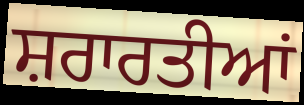
ਸ਼ਰਾਰਤੀਆਂ